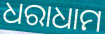
ଧରାଧାମ